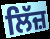
ਲਿੱਜ਼